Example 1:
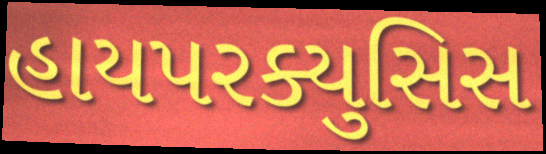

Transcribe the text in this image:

હાયપરક્યુસિસ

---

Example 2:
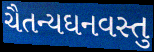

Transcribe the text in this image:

ચૈતન્યઘનવસ્તુ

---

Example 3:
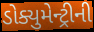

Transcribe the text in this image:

ડોક્યુમેન્ટ્રીની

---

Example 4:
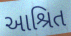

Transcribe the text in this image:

આશ્રિત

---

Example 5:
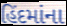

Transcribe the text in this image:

હિંદમાંના